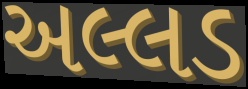
અલ્લડ